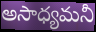
అసాధ్యమనీ